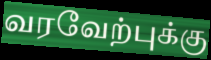
வரவேற்புக்கு